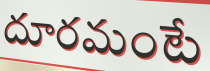
దూరమంటే